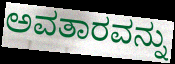
ಅವತಾರವನ್ನು